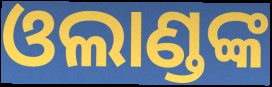
ଓଲାଣ୍ଡଙ୍କ